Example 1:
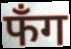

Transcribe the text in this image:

फँग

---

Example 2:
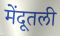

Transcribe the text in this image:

मेंदूतली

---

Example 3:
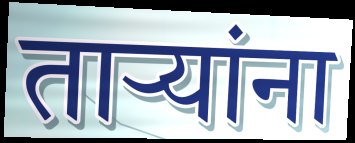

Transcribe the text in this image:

ताऱ्यांना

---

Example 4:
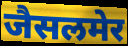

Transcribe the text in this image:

जैसलमेर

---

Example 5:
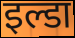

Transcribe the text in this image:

इल्डा